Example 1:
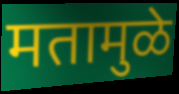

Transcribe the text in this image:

मतामुळे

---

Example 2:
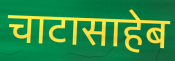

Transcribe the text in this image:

चाटासाहेब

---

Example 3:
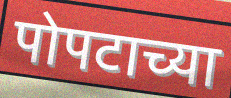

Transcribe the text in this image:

पोपटाच्या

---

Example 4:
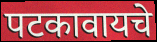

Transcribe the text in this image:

पटकावायचे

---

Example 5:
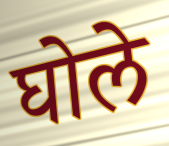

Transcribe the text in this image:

घोले